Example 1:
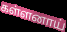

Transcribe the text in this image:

கள்ளனாய்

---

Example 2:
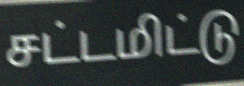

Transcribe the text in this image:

சட்டமிட்டு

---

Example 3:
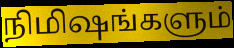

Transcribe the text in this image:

நிமிஷங்களும்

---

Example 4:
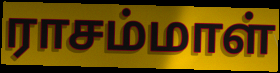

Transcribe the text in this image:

ராசம்மாள்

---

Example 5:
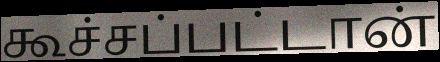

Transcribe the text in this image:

கூச்சப்பட்டான்